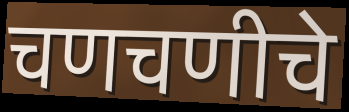
चणचणीचे